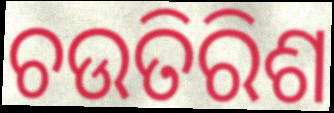
ଚଉତିରିଶ